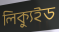
লিক্যুইড